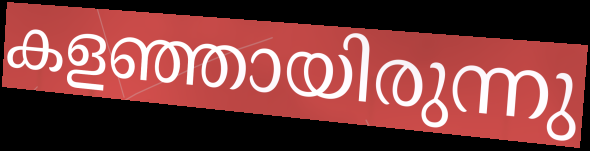
കളഞ്ഞായിരുന്നു